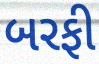
બરફી